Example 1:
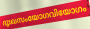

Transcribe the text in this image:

ദുഃഖസംയോഗവിയോഗം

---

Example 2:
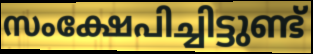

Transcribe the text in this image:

സംക്ഷേപിച്ചിട്ടുണ്ട്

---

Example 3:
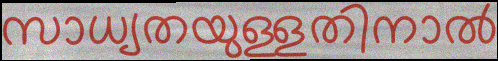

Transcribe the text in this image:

സാധ്യതയുള്ളതിനാൽ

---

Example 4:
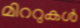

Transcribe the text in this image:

മിററുകൾ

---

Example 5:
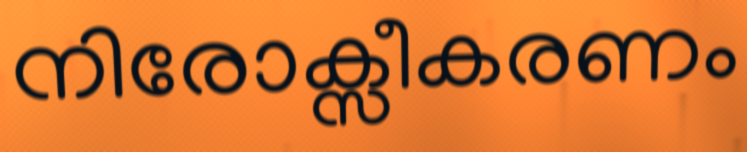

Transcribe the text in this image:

നിരോക്സീകരണം